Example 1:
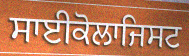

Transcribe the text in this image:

ਸਾਈਕੋਲਾਜਿਸਟ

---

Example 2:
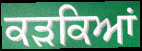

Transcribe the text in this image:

ਕੜਕਿਆਂ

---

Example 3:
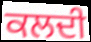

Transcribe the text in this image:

ਕਲਦੀ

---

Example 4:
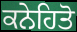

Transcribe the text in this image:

ਕਨੇਹਿਤੋ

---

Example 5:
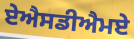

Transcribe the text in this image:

ਏਐਸਡੀਐਮਏ